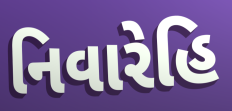
નિવારેહિ